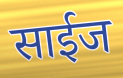
साईज